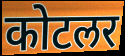
कोटलर